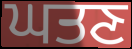
ਘਤਣ